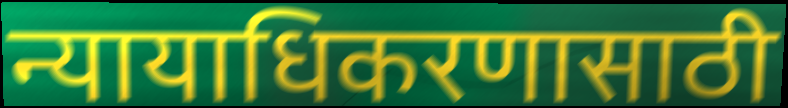
न्यायाधिकरणासाठी